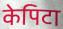
केपिटा